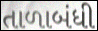
તાળાબંધી